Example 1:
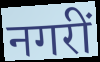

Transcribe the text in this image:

नगरीं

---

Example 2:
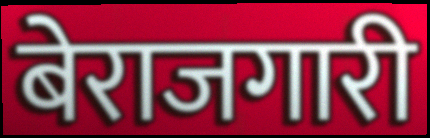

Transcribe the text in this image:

बेराजगारी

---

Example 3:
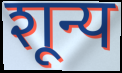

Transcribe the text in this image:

शून्य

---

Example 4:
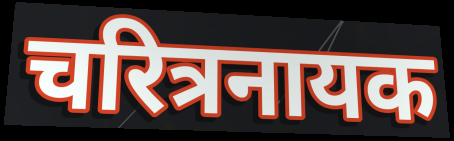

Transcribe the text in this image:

चरित्रनायक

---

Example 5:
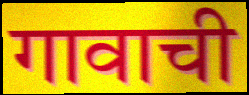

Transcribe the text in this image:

गावाची